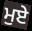
ਮੁਏ